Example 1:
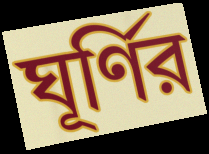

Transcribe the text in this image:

ঘূর্ণির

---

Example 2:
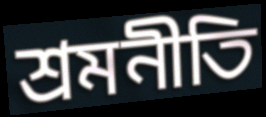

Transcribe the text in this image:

শ্রমনীতি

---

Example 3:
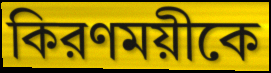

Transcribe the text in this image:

কিরণময়ীকে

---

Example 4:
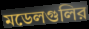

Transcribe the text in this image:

মডেলগুলির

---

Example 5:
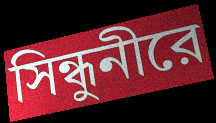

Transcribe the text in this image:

সিন্ধুনীরে